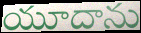
యూదాను